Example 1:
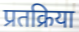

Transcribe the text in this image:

प्रतक्रिया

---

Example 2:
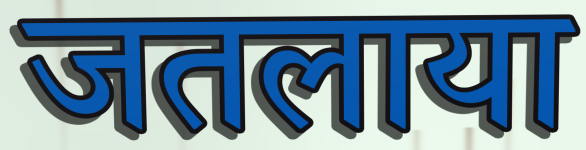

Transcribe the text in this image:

जतलाया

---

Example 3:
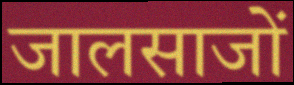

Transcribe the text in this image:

जालसाजों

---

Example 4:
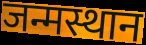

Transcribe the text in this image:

जन्मस्थान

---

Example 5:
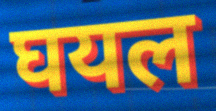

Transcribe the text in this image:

घयल